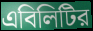
এবিলিটির